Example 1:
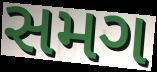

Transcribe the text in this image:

સમગ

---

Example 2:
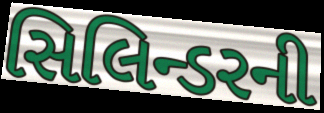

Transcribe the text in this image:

સિલિન્ડરની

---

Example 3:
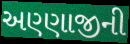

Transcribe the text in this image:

અણ્ણાજીની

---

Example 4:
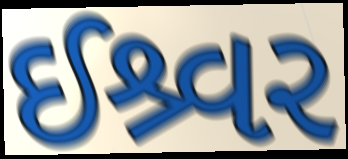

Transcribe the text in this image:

ઈશ્ર્વર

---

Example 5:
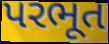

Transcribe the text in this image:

પરભૂત